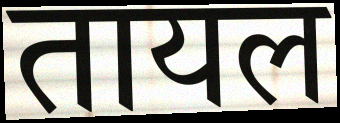
तायल